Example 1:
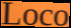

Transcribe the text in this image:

Loco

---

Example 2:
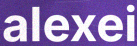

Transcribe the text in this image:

alexei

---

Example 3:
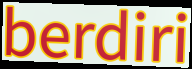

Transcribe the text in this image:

berdiri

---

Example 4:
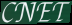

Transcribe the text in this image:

CNET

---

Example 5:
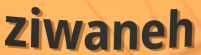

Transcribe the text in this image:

ziwaneh